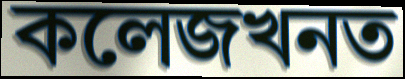
কলেজখনত